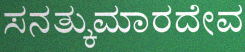
ಸನತ್ಕುಮಾರದೇವ